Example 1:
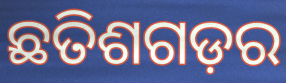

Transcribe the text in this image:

ଛତିଶଗଡ଼ର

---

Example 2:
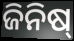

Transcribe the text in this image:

ଜିନିଷ୍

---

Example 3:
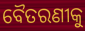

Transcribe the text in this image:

ବୈତରଣୀକୁ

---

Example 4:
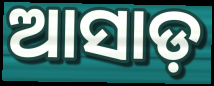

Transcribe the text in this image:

ଆସାଡ଼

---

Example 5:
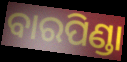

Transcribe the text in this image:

ବାରପିଣ୍ଡା